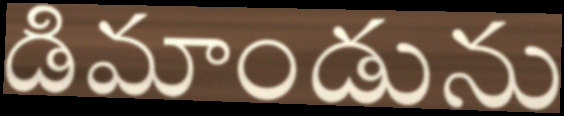
డిమాండును